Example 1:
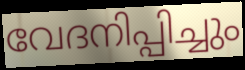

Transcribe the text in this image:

വേദനിപ്പിച്ചും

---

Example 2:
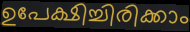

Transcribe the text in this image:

ഉപേക്ഷിച്ചിരിക്കാം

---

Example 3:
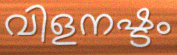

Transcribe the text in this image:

വിളനഷ്ടം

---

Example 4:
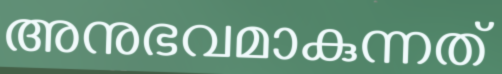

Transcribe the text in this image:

അനുഭവമാകുന്നത്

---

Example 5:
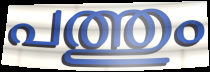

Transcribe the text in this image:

പത്തും